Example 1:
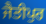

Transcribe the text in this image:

ਜੈਤੀਪੁਰ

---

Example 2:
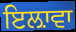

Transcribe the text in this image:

ਇਲ਼ਾਵਾ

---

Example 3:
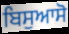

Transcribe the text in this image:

ਬਿਸੁਆਸੋ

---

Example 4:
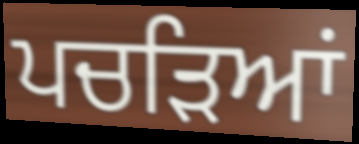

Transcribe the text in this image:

ਪਚੜਿਆਂ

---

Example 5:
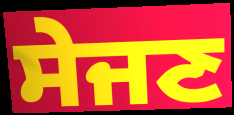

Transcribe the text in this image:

ਸੇਜਣ